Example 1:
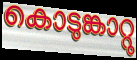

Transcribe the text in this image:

കൊടുങ്കാറ്റു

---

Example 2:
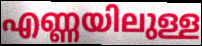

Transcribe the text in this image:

എണ്ണയിലുള്ള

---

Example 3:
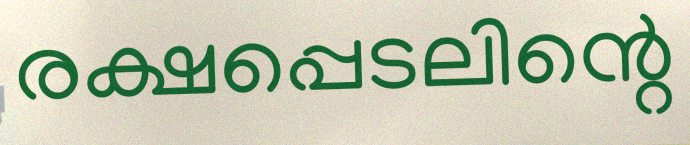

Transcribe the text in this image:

രക്ഷപ്പെടലിന്റെ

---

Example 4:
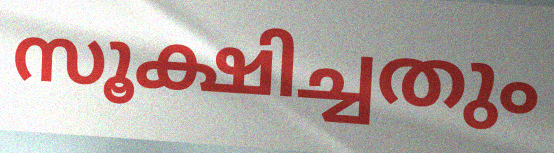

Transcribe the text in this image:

സൂക്ഷിച്ചതും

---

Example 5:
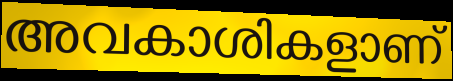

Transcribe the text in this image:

അവകാശികളാണ്